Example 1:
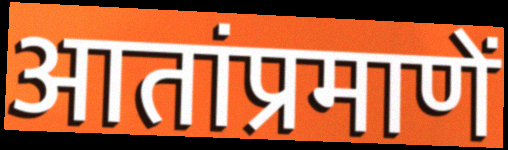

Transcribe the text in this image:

आतांप्रमाणें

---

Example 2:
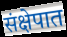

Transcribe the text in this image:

संक्षेपात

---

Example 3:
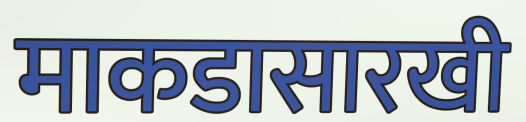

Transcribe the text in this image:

माकडासारखी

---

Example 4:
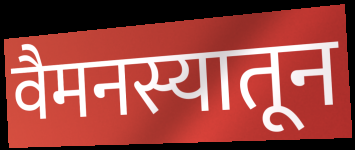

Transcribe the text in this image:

वैमनस्यातून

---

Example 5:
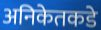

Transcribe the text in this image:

अनिकेतकडे